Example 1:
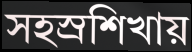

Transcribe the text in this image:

সহস্রশিখায়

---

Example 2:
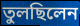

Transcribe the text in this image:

তুলছিলেন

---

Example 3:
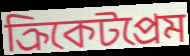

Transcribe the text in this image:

ক্রিকেটপ্রেম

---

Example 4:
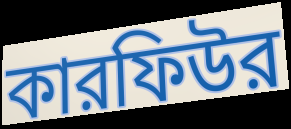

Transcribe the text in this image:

কারফিউর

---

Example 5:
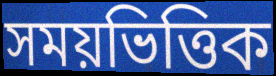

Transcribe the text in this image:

সময়ভিত্তিক